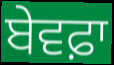
ਬੇਵਫ਼ਾ